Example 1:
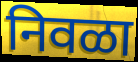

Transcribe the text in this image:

निवळा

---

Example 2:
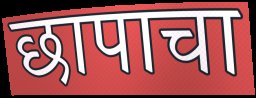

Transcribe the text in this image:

छापाचा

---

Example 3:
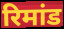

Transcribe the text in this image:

रिमांड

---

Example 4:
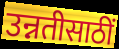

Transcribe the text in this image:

उन्नतीसाठीं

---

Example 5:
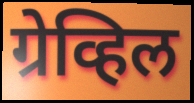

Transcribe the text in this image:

ग्रेव्हिल